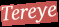
Tereye